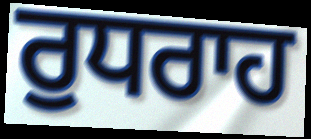
ਰੁਧਰਾਹ